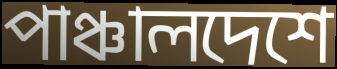
পাঞ্চালদেশে